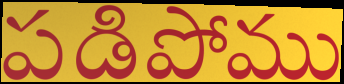
పడిపోము